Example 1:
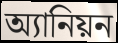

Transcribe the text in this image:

অ্যানিয়ন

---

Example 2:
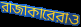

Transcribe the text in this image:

রাজাকারেরাও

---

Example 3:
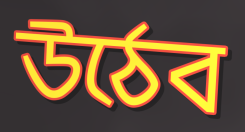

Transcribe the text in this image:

উঠেব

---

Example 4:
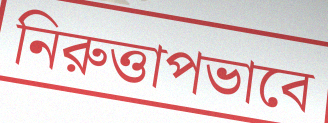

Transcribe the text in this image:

নিরুত্তাপভাবে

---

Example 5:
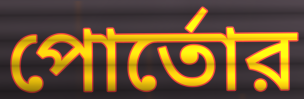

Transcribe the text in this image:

পোর্তোর